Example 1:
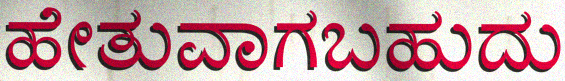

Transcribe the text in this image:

ಹೇತುವಾಗಬಹುದು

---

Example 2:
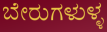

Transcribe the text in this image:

ಬೇರುಗಳುಳ್ಳ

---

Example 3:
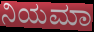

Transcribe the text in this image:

ನಿಯಮಾ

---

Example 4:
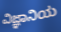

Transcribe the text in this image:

ವಿಜ್ಞಾನಿಯ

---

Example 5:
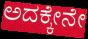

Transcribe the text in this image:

ಅದಕ್ಕೇನೇ